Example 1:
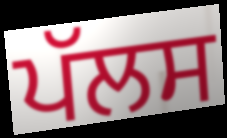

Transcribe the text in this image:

ਪੱਲਸ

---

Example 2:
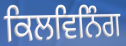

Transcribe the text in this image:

ਕਿਲਵਿਨਿੰਗ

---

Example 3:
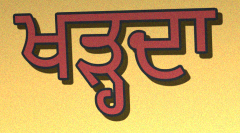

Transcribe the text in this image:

ਖੜ੍ਹਦਾ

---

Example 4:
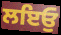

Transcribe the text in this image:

ਲਇਓੁ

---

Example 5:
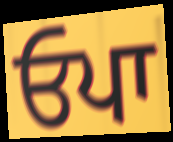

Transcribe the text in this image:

ਓਪਾ